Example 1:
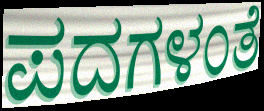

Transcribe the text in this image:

ಪದಗಳಂತೆ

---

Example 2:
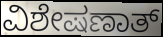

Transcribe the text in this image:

ವಿಶೇಷಣಾತ್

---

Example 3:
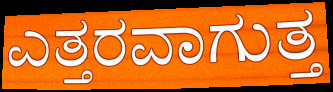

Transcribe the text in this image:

ಎತ್ತರವಾಗುತ್ತ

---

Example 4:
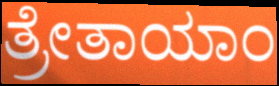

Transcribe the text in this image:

ತ್ರೇತಾಯಾಂ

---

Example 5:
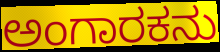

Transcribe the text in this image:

ಅಂಗಾರಕನು